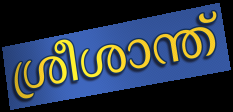
ശ്രീശാന്ത്